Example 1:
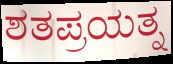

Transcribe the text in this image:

ಶತಪ್ರಯತ್ನ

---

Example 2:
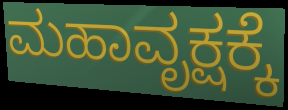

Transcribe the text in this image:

ಮಹಾವೃಕ್ಷಕ್ಕೆ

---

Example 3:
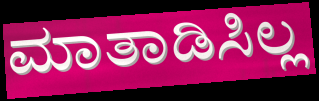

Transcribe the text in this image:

ಮಾತಾಡಿಸಿಲ್ಲ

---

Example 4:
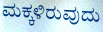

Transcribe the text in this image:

ಮಕ್ಕಳಿರುವುದು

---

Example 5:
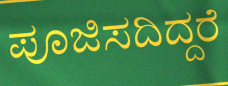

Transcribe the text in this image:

ಪೂಜಿಸದಿದ್ದರೆ